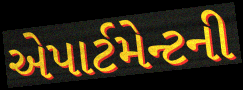
એપાર્ટમેન્ટની